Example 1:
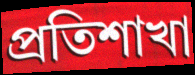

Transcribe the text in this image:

প্রতিশাখা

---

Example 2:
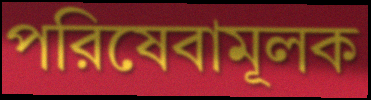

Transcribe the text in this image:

পরিষেবামূলক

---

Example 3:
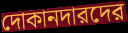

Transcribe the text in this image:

দোকানদারদের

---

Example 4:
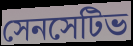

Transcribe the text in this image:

সেনসেটিভ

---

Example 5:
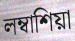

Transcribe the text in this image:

লম্বাশিয়া